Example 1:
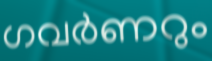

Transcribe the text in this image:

ഗവർണറും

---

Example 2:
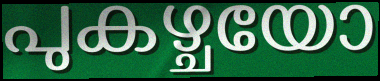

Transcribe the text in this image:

പുകഴ്ചയോ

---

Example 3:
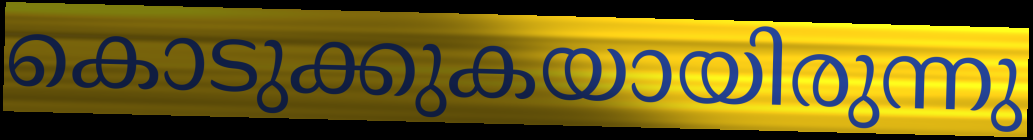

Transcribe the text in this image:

കൊടുക്കുകയായിരുന്നു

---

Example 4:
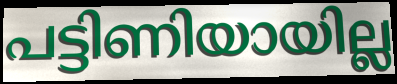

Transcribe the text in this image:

പട്ടിണിയായില്ല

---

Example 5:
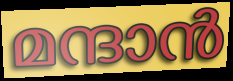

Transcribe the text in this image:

മന്ദാൻ